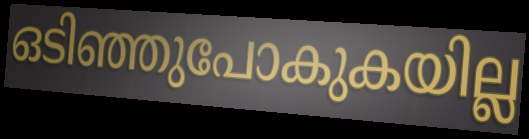
ഒടിഞ്ഞുപോകുകയില്ല